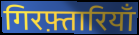
गिरफ़्तारियाँ